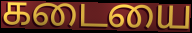
கடையை